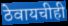
ठेवायचीही